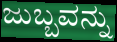
ಜುಬ್ಬವನ್ನು